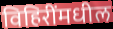
विहिरींमधील